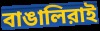
বাঙালিরাই